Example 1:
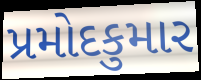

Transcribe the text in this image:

પ્રમોદકુમાર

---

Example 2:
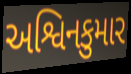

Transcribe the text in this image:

અશ્વિનકુમાર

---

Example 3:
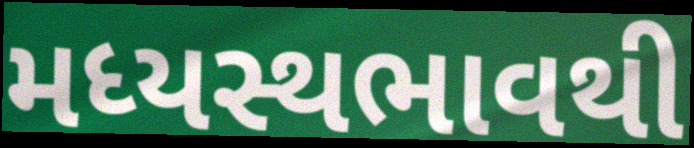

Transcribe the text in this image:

મધ્યસ્થભાવથી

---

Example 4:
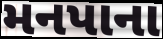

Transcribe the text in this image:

મનપાના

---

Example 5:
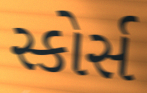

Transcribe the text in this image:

સ્કોર્સ